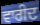
ਵਾਰੀਦ